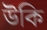
উকি